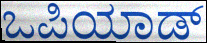
ಒಪಿಯಾಡ್